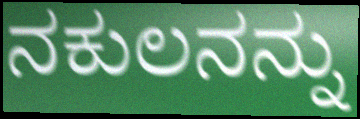
ನಕುಲನನ್ನು